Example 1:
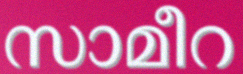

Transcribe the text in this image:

സാമീറ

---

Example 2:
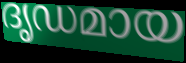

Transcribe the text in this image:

ദൃഡമായ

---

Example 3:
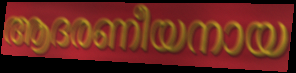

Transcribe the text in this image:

ആദരണീയനായ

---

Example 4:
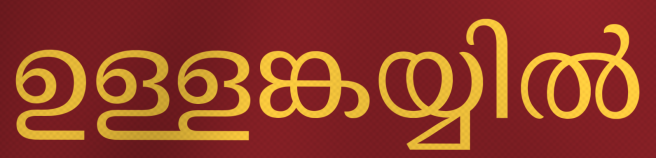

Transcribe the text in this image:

ഉള്ളങ്കയ്യിൽ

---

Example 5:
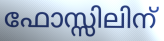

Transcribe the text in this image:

ഫോസ്സിലിന്